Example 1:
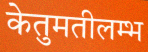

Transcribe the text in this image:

केतुमतीलम्भ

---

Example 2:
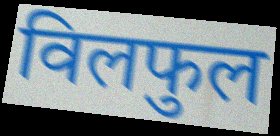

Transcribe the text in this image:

विलफुल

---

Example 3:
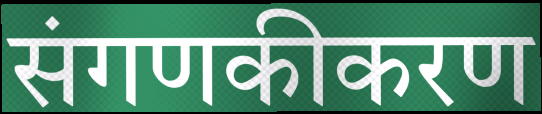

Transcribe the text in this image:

संगणकीकरण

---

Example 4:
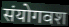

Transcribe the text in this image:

संयोगवश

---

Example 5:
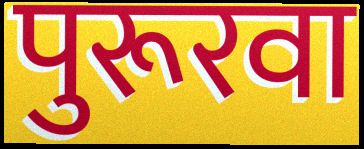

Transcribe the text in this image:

पुरूरवा